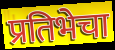
प्रतिभेचा